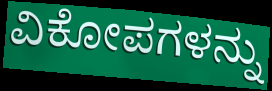
ವಿಕೋಪಗಳನ್ನು